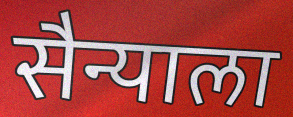
सैन्याला